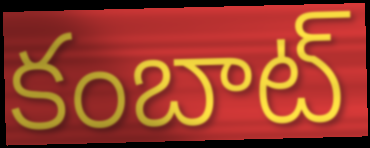
కంబాట్